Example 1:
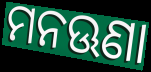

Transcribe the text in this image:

ମନଊଣା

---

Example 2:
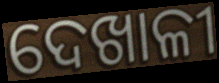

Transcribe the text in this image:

ଦେଖାଳୀ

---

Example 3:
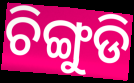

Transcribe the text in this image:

ଚିଙ୍ଗୁଡି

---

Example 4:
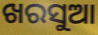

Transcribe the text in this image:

ଖରସୁଆ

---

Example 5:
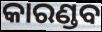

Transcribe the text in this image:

କାରଣ୍ଡବ